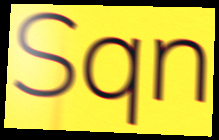
Sqn